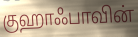
குஹாஃபாவின்